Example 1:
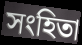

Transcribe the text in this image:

সংহিতা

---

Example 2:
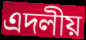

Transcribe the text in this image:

এদলীয়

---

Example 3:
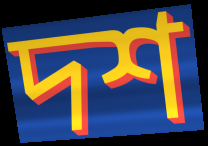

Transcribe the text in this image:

দশ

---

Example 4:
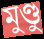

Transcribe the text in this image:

মুণ্ডু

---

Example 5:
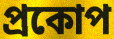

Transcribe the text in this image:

প্ৰকোপ